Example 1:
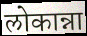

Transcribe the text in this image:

लोकान्ना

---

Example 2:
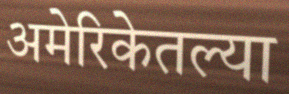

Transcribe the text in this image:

अमेरिकेतल्या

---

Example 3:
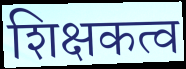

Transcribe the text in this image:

शिक्षकत्व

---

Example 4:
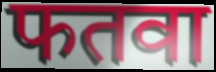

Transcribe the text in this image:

फतवा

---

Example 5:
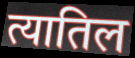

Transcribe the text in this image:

त्यातिल